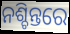
ନଶ୍ଚିନ୍ତରେ